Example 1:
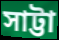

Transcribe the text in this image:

সাট্টা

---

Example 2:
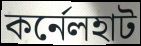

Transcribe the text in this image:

কর্নেলহাট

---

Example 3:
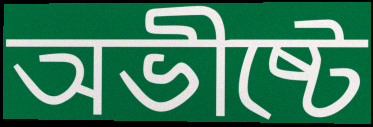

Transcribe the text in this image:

অভীষ্টে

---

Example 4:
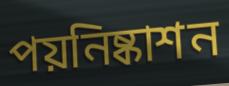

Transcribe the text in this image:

পয়নিষ্কাশন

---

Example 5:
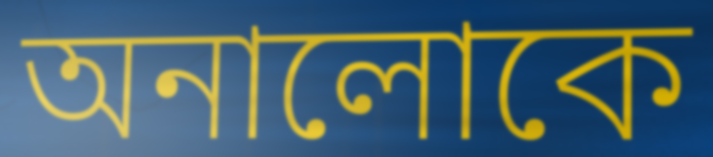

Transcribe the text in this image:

অনালোকে